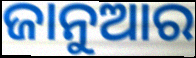
ଜାନୁଆର